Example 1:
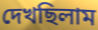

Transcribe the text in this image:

দেখছিলাম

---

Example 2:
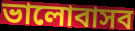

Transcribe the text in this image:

ভালোবাসব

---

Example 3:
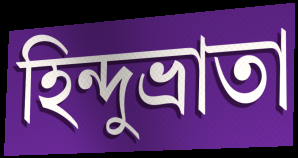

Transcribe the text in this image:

হিন্দুভ্রাতা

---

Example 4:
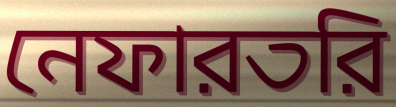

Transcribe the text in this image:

নেফারতরি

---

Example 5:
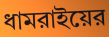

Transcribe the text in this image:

ধামরাইয়ের